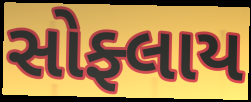
સોફ્લાય